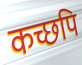
कच्छपि